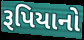
રૂપિયાનો